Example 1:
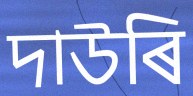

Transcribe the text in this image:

দাউৰি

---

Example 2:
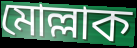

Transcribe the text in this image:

মোল্লাক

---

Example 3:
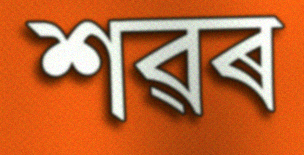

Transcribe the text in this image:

শৱৰ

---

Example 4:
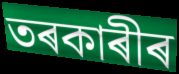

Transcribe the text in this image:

তৰকাৰীৰ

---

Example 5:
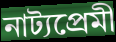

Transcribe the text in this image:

নাট্যপ্ৰেমী